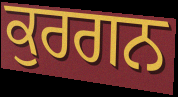
ਕੁਰਗਨ